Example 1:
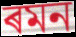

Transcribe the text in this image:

ৰমন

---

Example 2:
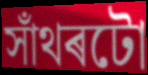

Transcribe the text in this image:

সাঁথৰটো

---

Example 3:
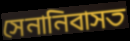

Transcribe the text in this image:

সেনানিবাসত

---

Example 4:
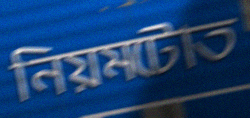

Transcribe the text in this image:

নিয়মটোত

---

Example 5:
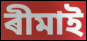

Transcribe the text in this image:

ৰীমাই